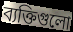
ব্যক্তিগুলো